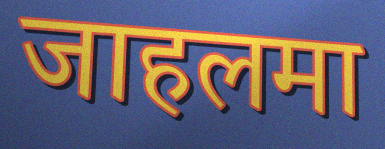
जाहलमा